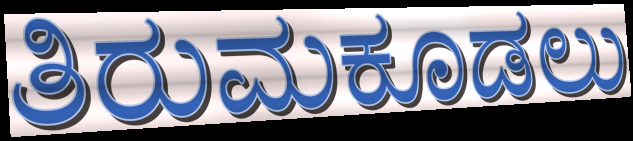
ತಿರುಮಕೂಡಲು